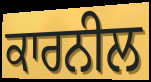
ਕਾਰਨੀਲ